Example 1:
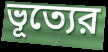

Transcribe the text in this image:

ভূত্যের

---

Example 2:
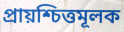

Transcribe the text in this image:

প্রায়শ্চিত্তমূলক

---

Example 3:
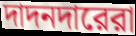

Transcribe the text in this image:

দাদনদারেরা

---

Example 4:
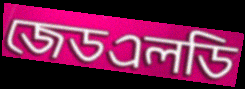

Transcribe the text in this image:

জেডএলডি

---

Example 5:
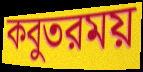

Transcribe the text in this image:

কবুতরময়